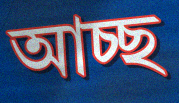
আচ্ছ